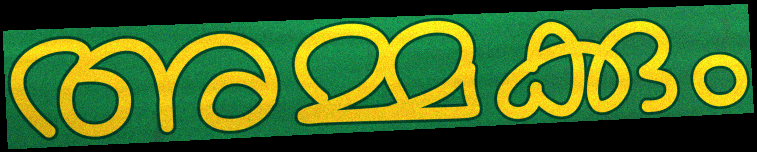
അമ്മക്കും